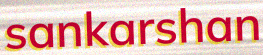
sankarshan